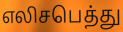
எலிசபெத்து